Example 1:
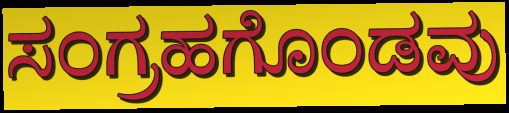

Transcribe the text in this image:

ಸಂಗ್ರಹಗೊಂಡವು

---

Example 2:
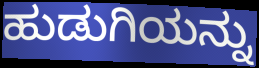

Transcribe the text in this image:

ಹುಡುಗಿಯನ್ನು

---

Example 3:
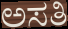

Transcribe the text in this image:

ಅಸತಿ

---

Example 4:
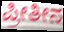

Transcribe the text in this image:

ಪ್ರೀತೀನ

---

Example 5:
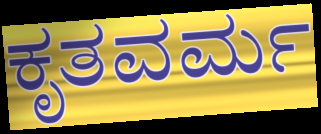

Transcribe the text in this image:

ಕೃತವರ್ಮ